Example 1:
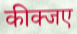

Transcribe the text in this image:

कीक्जए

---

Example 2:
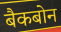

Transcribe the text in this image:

बैकबोन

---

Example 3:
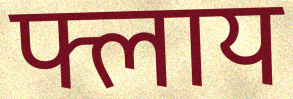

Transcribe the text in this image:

फ्लाय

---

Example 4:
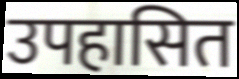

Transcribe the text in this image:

उपहासित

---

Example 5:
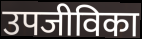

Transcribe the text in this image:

उपजीविका